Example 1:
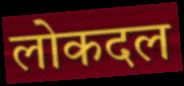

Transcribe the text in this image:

लोकदल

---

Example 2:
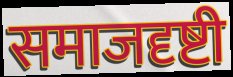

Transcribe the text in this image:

समाजदृष्टी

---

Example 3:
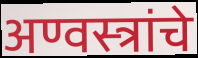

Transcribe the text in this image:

अण्वस्त्रांचे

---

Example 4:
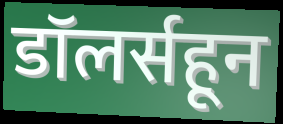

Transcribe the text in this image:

डॉलर्सहून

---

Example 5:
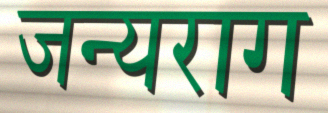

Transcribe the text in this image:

जन्यराग